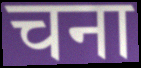
चना